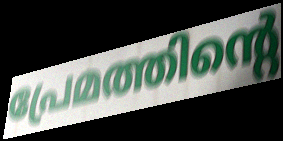
പ്രേമത്തിന്റെ